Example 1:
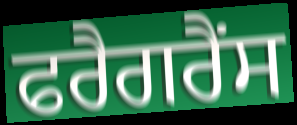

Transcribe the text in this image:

ਫਰੈਗਰੈਂਸ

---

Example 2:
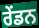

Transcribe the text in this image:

ਰੇਂਡਨ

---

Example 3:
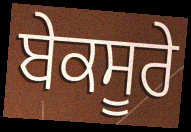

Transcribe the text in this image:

ਬੇਕਸੂਰੇ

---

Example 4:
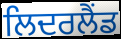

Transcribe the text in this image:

ਲਿਦਰਲੈਂਡ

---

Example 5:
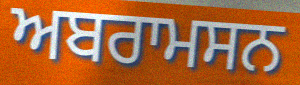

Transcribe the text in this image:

ਅਬਰਾਮਸਨ